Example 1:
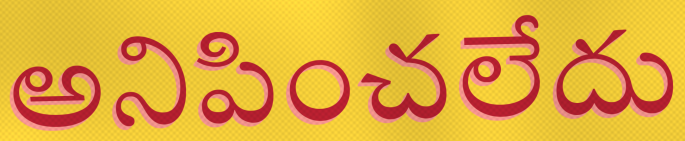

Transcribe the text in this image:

అనిపించలేదు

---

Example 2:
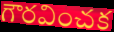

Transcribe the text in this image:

గౌరవించక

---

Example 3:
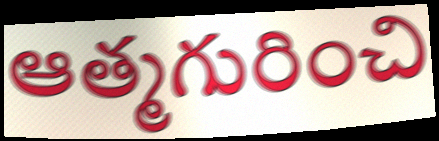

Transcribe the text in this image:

ఆత్మగురించి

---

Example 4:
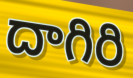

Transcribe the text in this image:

దాగిరి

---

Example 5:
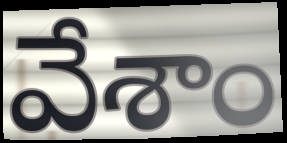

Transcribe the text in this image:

వేశాం